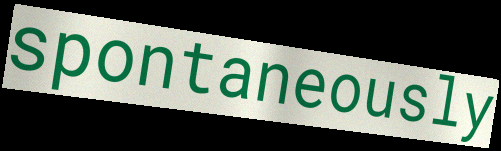
spontaneously